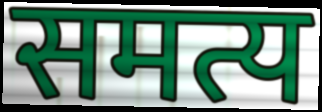
समत्य